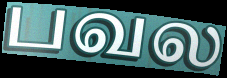
பவல